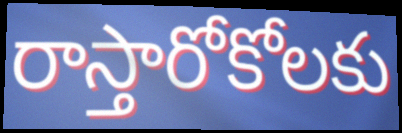
రాస్తారోకోలకు